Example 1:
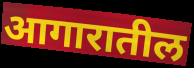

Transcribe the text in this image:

आगारातील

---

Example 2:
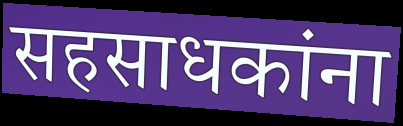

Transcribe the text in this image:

सहसाधकांना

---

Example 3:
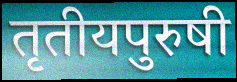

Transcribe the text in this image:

तृतीयपुरुषी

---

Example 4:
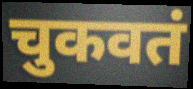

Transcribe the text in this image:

चुकवतं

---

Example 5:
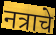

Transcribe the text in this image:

नत्राचे